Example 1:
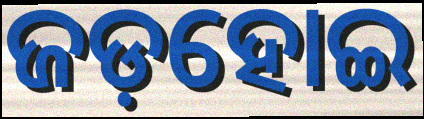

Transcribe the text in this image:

ଜଡ଼ହୋଇ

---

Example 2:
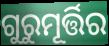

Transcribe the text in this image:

ଗୁରୁମୂର୍ତ୍ତିର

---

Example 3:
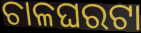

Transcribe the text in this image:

ଚାଳଘରଟା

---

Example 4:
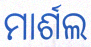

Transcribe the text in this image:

ମାର୍ଶଲ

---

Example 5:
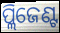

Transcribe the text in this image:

ପ୍ଲିଜେଣ୍ଟ